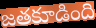
జతకూడింది